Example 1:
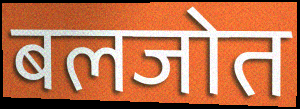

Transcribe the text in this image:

बलजोत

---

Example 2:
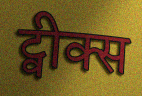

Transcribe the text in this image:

ट्वीक्स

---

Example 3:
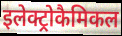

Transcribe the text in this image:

इलेक्ट्रोकैमिकल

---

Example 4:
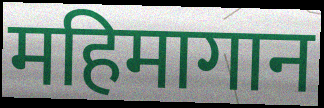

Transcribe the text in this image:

महिमागान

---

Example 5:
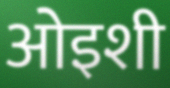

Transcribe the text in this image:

ओइशी